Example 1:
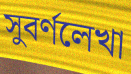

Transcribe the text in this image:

সুবর্ণলেখা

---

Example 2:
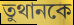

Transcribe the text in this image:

তুথানকে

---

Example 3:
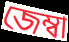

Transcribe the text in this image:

জেম্বা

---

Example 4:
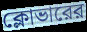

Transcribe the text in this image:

ক্লোভারের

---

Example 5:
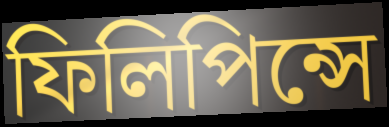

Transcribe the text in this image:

ফিলিপিন্সে